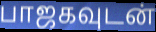
பாஜகவுடன்